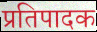
प्रतिपादक